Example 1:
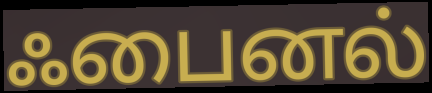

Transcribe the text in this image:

ஃபைனல்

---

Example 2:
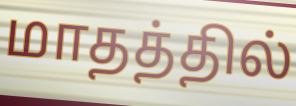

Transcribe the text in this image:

மாதத்தில்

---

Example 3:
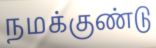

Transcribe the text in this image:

நமக்குண்டு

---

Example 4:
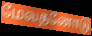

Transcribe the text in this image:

மேலதனோடு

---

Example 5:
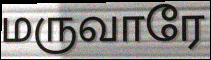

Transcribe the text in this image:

மருவாரே